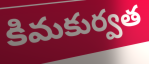
కిమకుర్వత